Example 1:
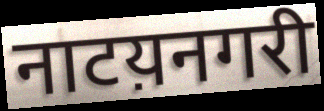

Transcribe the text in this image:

नाटय़नगरी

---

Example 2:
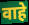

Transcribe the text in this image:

वाहे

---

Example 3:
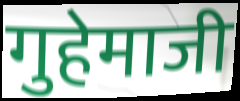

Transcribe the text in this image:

गुहेमाजी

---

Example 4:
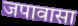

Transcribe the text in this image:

जपावासा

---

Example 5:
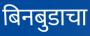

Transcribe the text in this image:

बिनबुडाचा